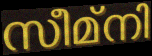
സീമ്നി